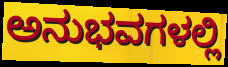
ಅನುಭವಗಳಲ್ಲಿ